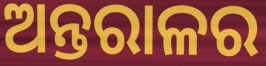
ଅନ୍ତରାଳର